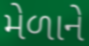
મેળાને